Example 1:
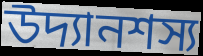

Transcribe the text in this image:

উদ্যানশস্য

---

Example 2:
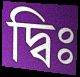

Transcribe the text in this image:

দ্বিঃ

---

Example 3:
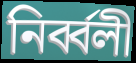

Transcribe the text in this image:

নিৰ্ব্বলী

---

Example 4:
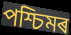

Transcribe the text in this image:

পশ্চিমৰ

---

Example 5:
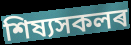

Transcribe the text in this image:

শিষ্যসকলৰ